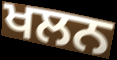
ਖਲਨ